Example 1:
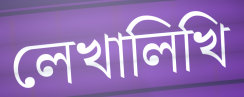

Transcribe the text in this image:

লেখালিখি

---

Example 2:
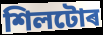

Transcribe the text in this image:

শিলটোৰ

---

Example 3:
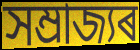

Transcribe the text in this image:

সম্ৰাজ্যৰ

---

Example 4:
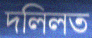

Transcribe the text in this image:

দলিলত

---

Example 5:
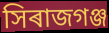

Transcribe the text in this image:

সিৰাজগঞ্জ